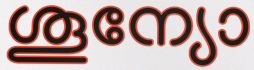
ശൂന്യോ